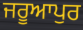
ਜਰੂਆਪੁਰ